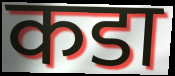
कडा